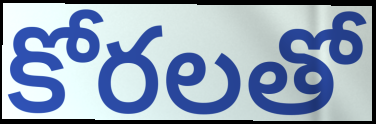
కోరలతో